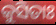
କୁସିତାଃ